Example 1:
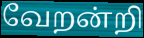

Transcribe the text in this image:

வேறன்றி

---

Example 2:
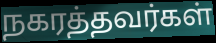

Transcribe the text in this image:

நகரத்தவர்கள்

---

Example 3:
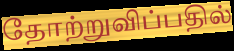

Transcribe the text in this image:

தோற்றுவிப்பதில்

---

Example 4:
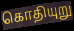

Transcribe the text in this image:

கொதியுறு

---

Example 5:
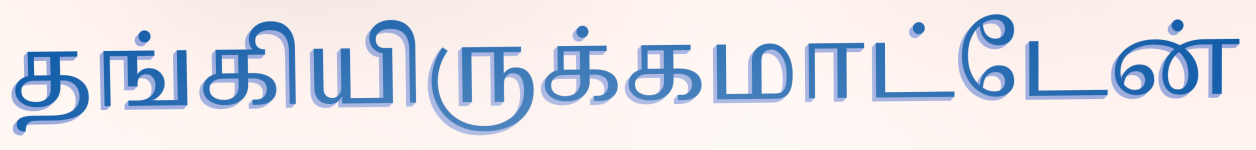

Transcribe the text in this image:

தங்கியிருக்கமாட்டேன்